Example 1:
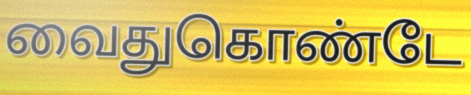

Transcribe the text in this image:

வைதுகொண்டே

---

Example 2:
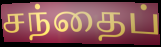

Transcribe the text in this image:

சந்தைப்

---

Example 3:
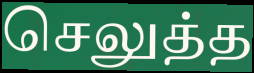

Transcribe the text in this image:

செலுத்த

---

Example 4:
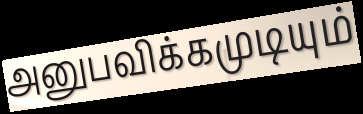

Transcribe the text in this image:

அனுபவிக்கமுடியும்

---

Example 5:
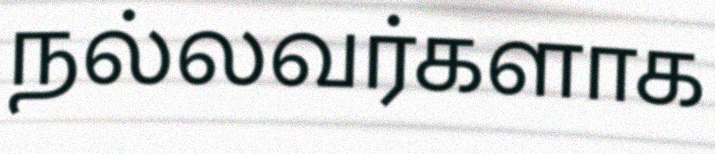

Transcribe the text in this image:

நல்லவர்களாக